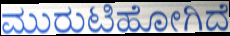
ಮುರುಟಿಹೋಗಿದೆ